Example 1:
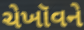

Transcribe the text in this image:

ચેખૉવને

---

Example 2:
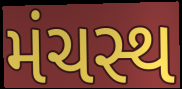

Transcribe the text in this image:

મંચસ્થ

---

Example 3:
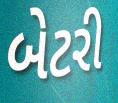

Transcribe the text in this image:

બેટરી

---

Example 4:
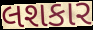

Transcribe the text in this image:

લશકાર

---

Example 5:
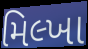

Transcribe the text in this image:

મિલ્ખા